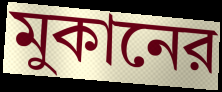
মুকানের